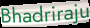
Bhadriraju